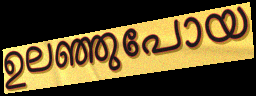
ഉലഞ്ഞുപോയ